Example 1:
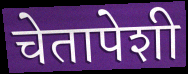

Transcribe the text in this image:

चेतापेशी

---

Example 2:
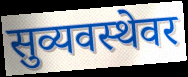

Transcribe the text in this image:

सुव्यवस्थेवर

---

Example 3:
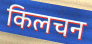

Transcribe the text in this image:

किलचन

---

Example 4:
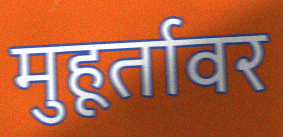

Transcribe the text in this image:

मुहूर्तावर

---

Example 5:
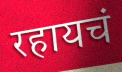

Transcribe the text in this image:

रहायचं